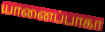
யானைப்பாகா